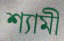
শ্যামী